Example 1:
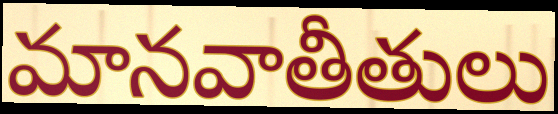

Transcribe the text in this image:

మానవాతీతులు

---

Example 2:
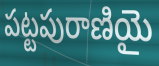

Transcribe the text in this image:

పట్టపురాణియై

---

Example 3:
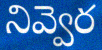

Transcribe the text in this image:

నివ్వెర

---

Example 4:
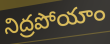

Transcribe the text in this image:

నిద్రపోయాం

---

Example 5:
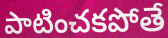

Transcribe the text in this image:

పాటించకపోతే